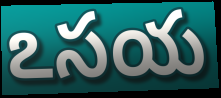
ఽసయ